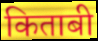
किताबी